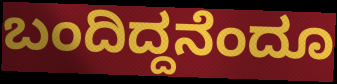
ಬಂದಿದ್ದನೆಂದೂ